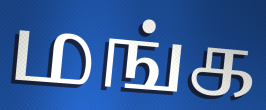
மங்க